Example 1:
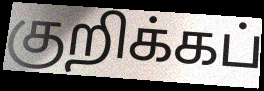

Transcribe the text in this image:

குறிக்கப்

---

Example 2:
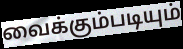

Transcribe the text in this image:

வைக்கும்படியும்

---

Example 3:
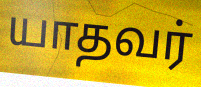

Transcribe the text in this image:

யாதவர்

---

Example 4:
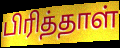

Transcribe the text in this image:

பிரித்தாள்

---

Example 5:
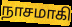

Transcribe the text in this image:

நாசமாகி